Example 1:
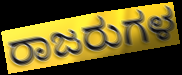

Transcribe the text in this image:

ರಾಜರುಗಳ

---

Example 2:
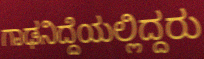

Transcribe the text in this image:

ಗಾಢನಿದ್ದೆಯಲ್ಲಿದ್ದರು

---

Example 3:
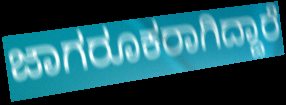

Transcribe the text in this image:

ಜಾಗರೂಕರಾಗಿದ್ದಾರೆ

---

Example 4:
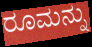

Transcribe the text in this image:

ರೂಮನ್ನು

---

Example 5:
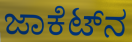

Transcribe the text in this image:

ಜಾಕೆಟ್‌ನ